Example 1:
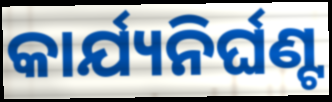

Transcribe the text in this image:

କାର୍ଯ୍ୟନିର୍ଘଣ୍ଟ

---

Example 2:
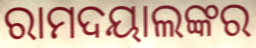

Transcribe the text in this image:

ରାମଦୟାଲଙ୍କର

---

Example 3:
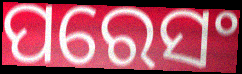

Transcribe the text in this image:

ପରେସଂ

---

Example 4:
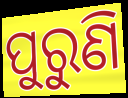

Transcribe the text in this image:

ପୁରୁଣି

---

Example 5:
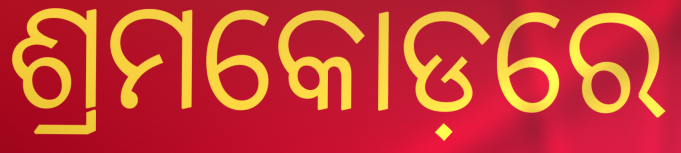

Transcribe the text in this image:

ଶ୍ରମକୋଡ଼ରେ